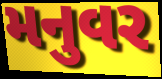
મનુવર